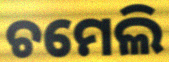
ଚମେଲି